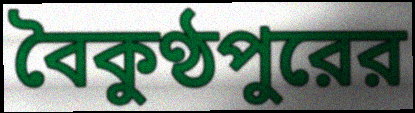
বৈকুণ্ঠপুরের